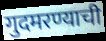
गुदमरण्याची